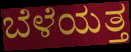
ಬೆಳೆಯತ್ತ